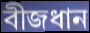
বীজধান